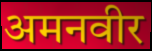
अमनवीर